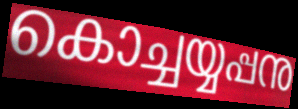
കൊച്ചയ്യപ്പനു